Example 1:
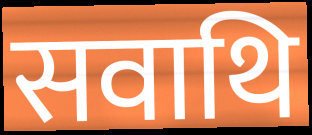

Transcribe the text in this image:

सवाथि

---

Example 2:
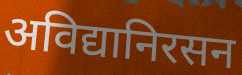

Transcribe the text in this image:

अविद्यानिरसन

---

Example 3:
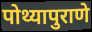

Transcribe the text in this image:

पोथ्यापुराणे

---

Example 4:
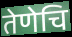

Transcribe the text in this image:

तेणेचि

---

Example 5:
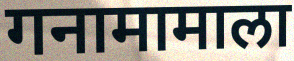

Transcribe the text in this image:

गनामामाला